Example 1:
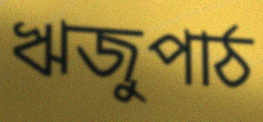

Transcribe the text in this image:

ঋজুপাঠ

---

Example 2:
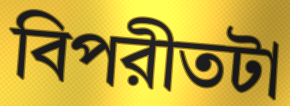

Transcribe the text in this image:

বিপরীতটা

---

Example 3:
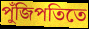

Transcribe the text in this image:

পুঁজিপতিতে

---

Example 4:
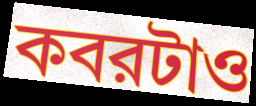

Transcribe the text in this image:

কবরটাও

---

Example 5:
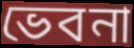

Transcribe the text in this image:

ভেবনা